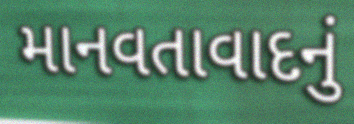
માનવતાવાદનું